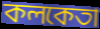
কলকেতা